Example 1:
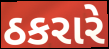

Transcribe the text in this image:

ઠકરારે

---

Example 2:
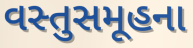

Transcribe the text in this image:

વસ્તુસમૂહના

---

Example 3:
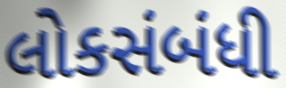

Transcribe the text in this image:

લોકસંબંધી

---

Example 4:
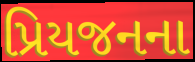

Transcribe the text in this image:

પ્રિયજનના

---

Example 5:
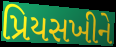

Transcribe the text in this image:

પ્રિયસખીને